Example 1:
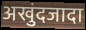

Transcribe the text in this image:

अखुंदजादा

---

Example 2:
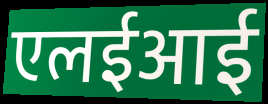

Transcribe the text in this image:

एलईआई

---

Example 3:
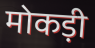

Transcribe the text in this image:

मोकड़ी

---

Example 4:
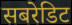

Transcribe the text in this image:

सबरेडिट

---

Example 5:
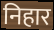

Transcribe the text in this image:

निहार